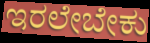
ಇರಲೇಬೇಕು